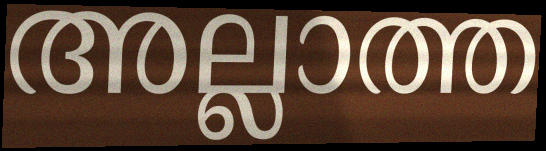
അല്ലാത്ത